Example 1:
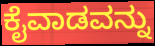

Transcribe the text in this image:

ಕೈವಾಡವನ್ನು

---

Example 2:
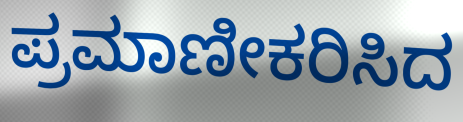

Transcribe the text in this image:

ಪ್ರಮಾಣೀಕರಿಸಿದ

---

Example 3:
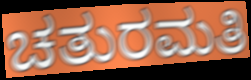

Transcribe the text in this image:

ಚತುರಮತಿ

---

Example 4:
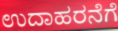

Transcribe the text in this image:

ಉದಾಹರನೆಗೆ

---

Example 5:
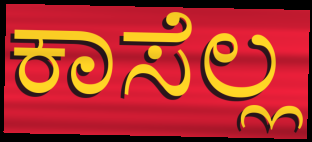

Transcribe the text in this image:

ಕಾಸೆಲ್ಲ